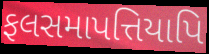
ફલસમાપત્તિયાપિ